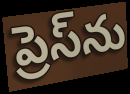
ప్రెస్‌ను